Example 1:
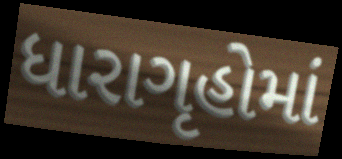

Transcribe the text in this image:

ધારાગૃહોમાં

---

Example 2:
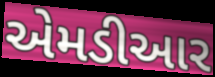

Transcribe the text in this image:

એમડીઆર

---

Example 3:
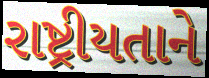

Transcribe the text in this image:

રાષ્ટ્રીયતાને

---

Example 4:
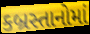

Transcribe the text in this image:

કબ્રસ્તાનોમાં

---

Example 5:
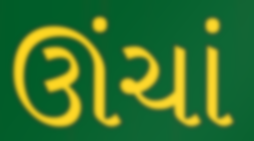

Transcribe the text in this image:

ઊંચાં